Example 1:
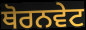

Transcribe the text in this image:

ਥੋਰਨਵੇਟ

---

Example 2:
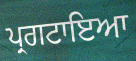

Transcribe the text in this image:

ਪ੍ਰਗਟਾਇਆ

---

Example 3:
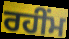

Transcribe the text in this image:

ਰਹੀਂਮ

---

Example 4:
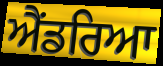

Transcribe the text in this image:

ਐਂਡਰਿਆ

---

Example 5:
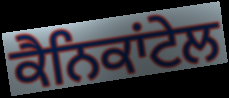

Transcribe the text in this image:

ਕੈਨਿਕਾਂਟੇਲ